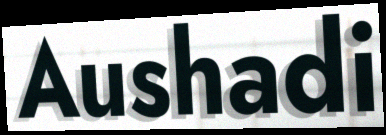
Aushadi